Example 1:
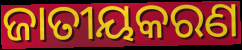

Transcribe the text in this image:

ଜାତୀୟକରଣ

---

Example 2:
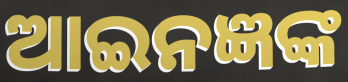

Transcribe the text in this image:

ଆଇନଜ୍ଞଙ୍କ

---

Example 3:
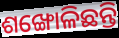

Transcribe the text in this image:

ଶଙ୍ଖୋଳିଛନ୍ତି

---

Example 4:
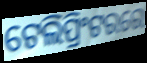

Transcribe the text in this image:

ଟେଲିପ୍ରିଂଟରରେ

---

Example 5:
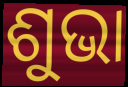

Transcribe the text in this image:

ଶୁଭା